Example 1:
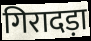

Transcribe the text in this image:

गिरादड़ा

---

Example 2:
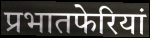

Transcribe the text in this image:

प्रभातफेरियां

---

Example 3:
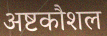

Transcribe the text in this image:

अष्टकौशल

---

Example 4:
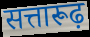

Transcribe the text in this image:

सत्तारूढ़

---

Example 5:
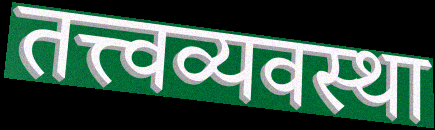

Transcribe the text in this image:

तत्त्वव्यवस्था